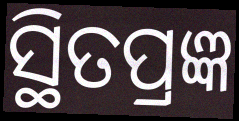
ସ୍ଥିତପ୍ରଜ୍ଞ